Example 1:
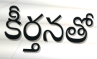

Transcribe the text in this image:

కీర్తనతో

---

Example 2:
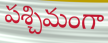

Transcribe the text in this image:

పశ్చిమంగా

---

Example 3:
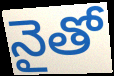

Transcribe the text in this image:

నైతో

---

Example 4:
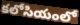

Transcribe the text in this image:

కలోసియంలో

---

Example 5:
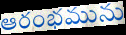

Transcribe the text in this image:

ఆరంభమును